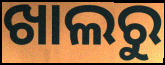
ଖାଲରୁ